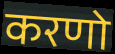
करणो